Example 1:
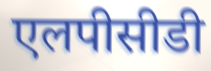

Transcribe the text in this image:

एलपीसीडी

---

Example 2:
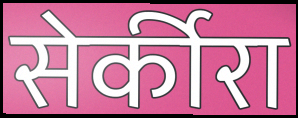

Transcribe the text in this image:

सेर्कीरा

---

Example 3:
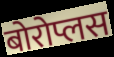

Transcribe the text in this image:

बोरोप्लस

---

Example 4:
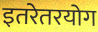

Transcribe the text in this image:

इतरेतरयोग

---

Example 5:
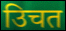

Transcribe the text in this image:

उिचत